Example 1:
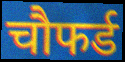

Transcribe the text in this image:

चौफर्ड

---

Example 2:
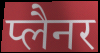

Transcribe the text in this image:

प्लैनर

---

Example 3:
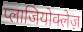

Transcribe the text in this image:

प्लाजियोक्लेज़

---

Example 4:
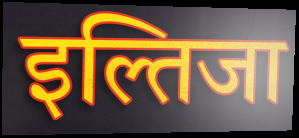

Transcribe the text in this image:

इल्तिजा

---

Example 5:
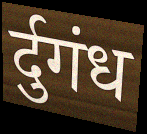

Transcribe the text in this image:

र्दुगंध